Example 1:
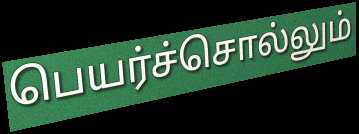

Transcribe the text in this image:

பெயர்ச்சொல்லும்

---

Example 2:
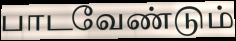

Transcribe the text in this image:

பாடவேண்டும்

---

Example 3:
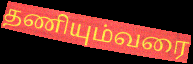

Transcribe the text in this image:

தணியும்வரை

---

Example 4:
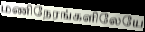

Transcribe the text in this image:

மணிநேரங்களிலேயே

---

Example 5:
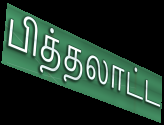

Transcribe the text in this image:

பித்தலாட்ட